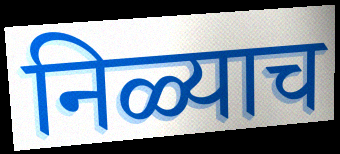
निळ्याच